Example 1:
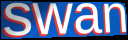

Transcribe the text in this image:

swan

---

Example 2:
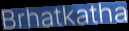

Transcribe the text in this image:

Brhatkatha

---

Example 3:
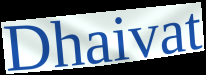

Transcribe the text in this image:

Dhaivat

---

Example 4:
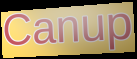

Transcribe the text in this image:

Canup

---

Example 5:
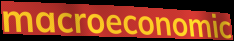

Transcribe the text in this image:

macroeconomic